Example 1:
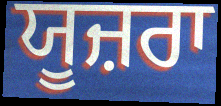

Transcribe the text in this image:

ਯੂਜ਼ਰਾ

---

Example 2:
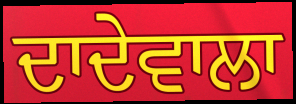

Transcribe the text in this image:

ਦਾਦੇਵਾਲਾ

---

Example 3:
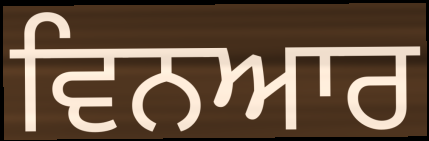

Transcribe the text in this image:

ਵਿਨਆਰ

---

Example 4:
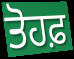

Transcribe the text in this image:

ਤੋਹਫ਼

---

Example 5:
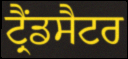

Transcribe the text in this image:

ਟ੍ਰੈਂਡਸੈਟਰ